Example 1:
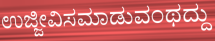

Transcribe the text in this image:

ಉಜ್ಜೀವಿಸಮಾಡುವಂಥದ್ದು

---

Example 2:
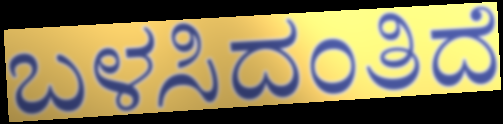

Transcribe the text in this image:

ಬಳಸಿದಂತಿದೆ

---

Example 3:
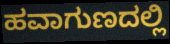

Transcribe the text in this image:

ಹವಾಗುಣದಲ್ಲಿ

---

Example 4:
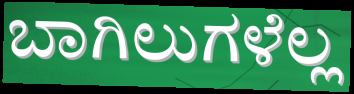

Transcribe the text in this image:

ಬಾಗಿಲುಗಳೆಲ್ಲ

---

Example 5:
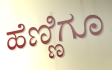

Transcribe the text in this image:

ಹೆಣ್ಣಿಗೂ